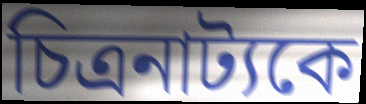
চিত্রনাট্যকে